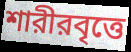
শারীরবৃত্তে